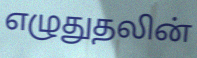
எழுதுதலின்